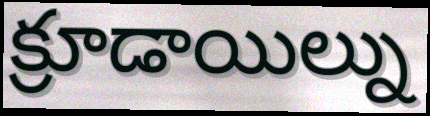
క్రూడాయిల్ను